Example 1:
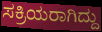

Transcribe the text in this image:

ಸಕ್ರಿಯರಾಗಿದ್ದು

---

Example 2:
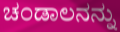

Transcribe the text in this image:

ಚಂಡಾಲನನ್ನು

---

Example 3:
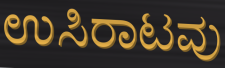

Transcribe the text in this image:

ಉಸಿರಾಟವು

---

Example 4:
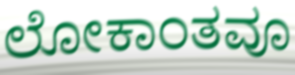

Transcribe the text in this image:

ಲೋಕಾಂತವೂ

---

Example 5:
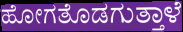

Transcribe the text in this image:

ಹೋಗತೊಡಗುತ್ತಾಳೆ